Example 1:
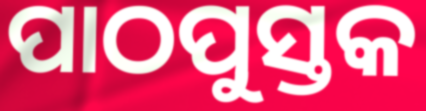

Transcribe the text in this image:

ପାଠପୁସ୍ତକ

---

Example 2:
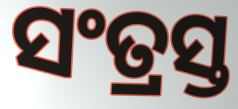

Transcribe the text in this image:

ସଂତ୍ରସ୍ତ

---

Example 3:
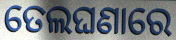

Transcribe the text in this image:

ତେଲଘଣାରେ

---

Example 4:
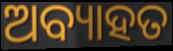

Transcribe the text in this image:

ଅବ୍ୟାହତ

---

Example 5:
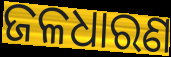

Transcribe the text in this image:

ଜଳଧାରଣ